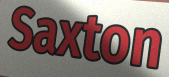
Saxton